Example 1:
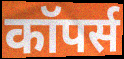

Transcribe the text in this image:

कॉपर्स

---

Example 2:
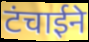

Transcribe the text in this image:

टंचाईने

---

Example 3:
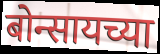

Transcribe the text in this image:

बोन्सायच्या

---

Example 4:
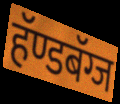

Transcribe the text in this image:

हॅण्डबॅग्ज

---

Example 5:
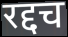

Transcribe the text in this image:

रद्दच